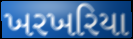
ખરખરિયા